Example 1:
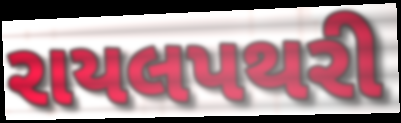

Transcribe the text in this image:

રાયલપથરી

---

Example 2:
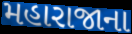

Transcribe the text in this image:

મહારાજાના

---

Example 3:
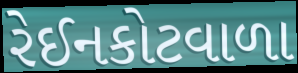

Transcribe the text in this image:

રેઈનકોટવાળા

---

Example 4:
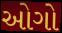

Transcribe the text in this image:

ઓગો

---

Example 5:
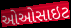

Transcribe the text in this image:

ઓઓસાઇટ